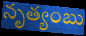
నృత్యంబు